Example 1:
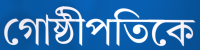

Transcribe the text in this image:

গোষ্ঠীপতিকে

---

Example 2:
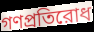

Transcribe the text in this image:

গণপ্রতিরোধ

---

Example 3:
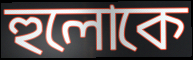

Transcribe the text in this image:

হুলোকে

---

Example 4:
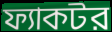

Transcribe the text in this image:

ফ্যাকটর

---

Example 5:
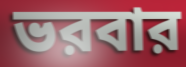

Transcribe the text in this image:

ভরবার